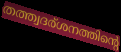
തത്ത്വദര്ശനത്തിന്റെ